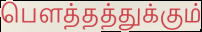
பௌத்தத்துக்கும்